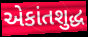
એકાંતશુદ્ધ